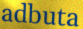
adbuta